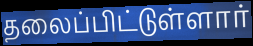
தலைப்பிட்டுள்ளார்